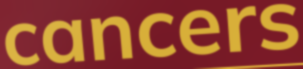
cancers